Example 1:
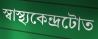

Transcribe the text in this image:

স্বাস্থ্যকেন্দ্ৰটোত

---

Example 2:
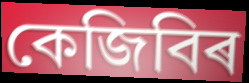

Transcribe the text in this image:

কেজিবিৰ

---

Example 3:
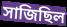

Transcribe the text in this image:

সাজিছিল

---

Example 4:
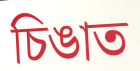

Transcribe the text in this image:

চিঙাত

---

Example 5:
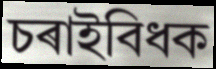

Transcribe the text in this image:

চৰাইবিধক